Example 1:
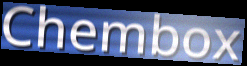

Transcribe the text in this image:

Chembox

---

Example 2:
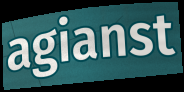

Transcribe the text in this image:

agianst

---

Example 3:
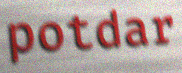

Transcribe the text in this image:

potdar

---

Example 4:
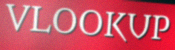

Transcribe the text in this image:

VLOOKUP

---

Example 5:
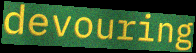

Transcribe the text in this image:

devouring